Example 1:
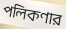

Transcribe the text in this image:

পলিকণার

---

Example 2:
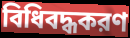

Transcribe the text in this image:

বিধিবদ্ধকরণ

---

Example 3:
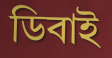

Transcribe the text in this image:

ডিবাই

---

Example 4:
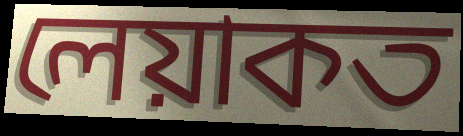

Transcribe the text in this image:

লেয়াকত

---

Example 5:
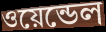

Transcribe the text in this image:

ওয়েন্ডেল